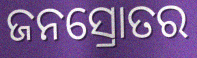
ଜନସ୍ରୋତର